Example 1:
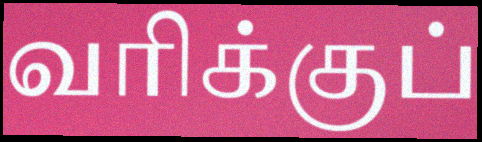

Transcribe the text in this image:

வரிக்குப்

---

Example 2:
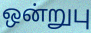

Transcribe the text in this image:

ஒன்றுபு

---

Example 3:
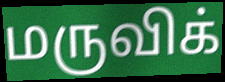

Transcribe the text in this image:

மருவிக்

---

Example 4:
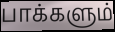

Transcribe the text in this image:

பாக்களும்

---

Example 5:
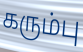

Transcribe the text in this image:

கரும்பு